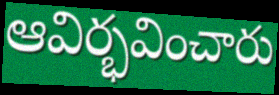
ఆవిర్భవించారు